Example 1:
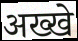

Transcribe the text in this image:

अख्खे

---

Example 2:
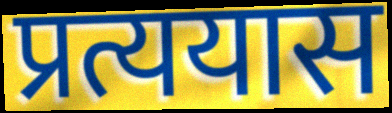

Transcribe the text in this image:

प्रत्ययास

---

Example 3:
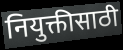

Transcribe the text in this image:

नियुक्तीसाठी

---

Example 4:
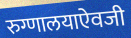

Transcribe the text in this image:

रुग्णालयाऐवजी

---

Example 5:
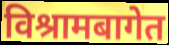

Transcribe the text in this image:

विश्रामबागेत